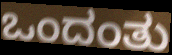
ಒಂದಂತು